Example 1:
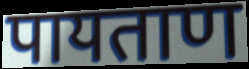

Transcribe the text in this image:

पायताण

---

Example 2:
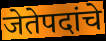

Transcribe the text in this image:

जेतेपदांचे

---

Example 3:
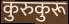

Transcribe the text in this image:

कुरुकुरू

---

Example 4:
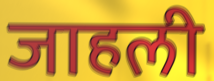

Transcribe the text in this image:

जाहली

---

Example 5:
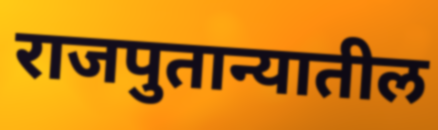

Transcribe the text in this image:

राजपुतान्यातील